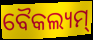
ବୈକଲ୍ୟମ୍